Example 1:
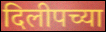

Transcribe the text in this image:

दिलीपच्या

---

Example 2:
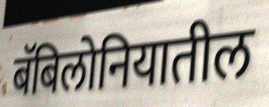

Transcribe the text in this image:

बॅबिलोनियातील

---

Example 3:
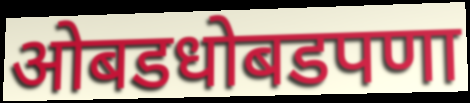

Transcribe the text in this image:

ओबडधोबडपणा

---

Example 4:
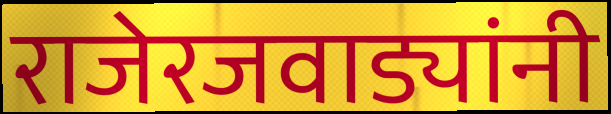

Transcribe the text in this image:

राजेरजवाड्यांनी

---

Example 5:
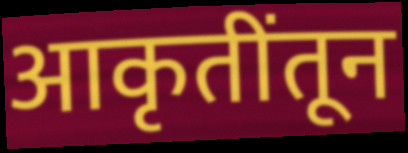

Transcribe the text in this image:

आकृतींतून